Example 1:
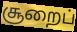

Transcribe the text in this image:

சூறைப்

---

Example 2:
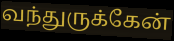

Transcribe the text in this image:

வந்துருக்கேன்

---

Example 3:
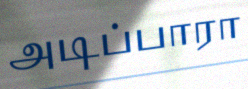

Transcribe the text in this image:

அடிப்பாரா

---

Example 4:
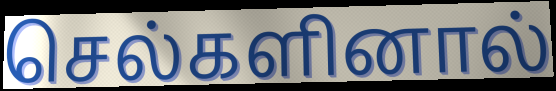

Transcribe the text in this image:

செல்களினால்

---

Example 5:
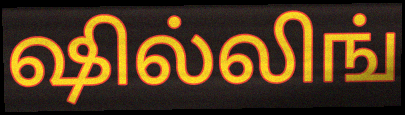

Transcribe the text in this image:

ஷில்லிங்